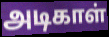
அடிகாள்